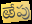
ఱేపు